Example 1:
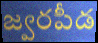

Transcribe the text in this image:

జ్వరపీడ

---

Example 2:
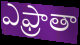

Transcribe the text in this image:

ఎఫ్రాతా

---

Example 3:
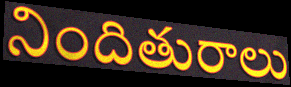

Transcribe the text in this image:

నిందితురాలు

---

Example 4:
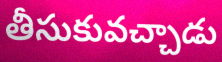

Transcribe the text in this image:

తీసుకువచ్చాడు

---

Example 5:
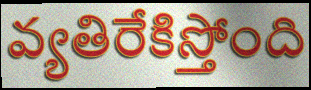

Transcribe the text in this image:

వ్యతిరేకిస్తోంది